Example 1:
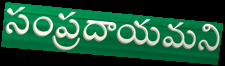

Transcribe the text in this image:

సంప్రదాయమని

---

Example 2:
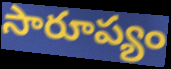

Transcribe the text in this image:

సారూప్యం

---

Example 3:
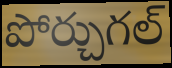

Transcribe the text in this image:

పోర్చుగల్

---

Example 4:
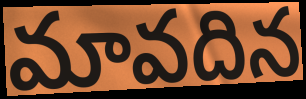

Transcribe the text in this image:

మావదిన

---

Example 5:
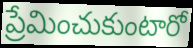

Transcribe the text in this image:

ప్రేమించుకుంటారో